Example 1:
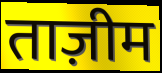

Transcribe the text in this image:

ताज़ीम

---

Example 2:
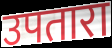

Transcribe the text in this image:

उपतारा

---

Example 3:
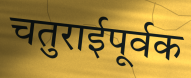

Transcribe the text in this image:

चतुराईपूर्वक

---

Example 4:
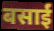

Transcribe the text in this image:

बसाईं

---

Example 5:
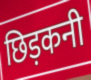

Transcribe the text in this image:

छिड़कनी